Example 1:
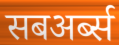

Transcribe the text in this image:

सबअर्ब्स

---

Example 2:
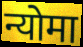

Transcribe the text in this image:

न्योमा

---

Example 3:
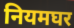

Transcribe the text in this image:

नियमघर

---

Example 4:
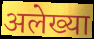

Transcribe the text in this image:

अलेख्या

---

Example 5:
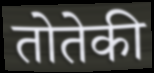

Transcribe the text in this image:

तोतेकी